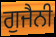
ਗੁਜੈਨੀ